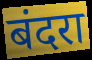
बंदरा